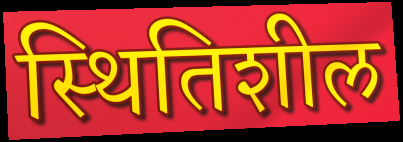
स्थितिशील